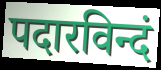
पदारविन्दं